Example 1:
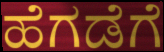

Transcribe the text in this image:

ಹೆಗಡೆಗೆ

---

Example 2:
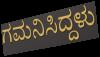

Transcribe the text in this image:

ಗಮನಿಸಿದ್ದಳು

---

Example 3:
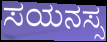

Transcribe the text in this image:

ಸಯನಸ್ಸ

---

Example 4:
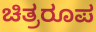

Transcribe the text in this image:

ಚಿತ್ರರೂಪ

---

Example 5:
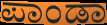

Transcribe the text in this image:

ಪಾಂಡಾ